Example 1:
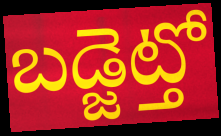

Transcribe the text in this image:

బడ్జెట్తో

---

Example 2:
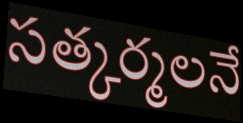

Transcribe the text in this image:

సత్కర్మలనే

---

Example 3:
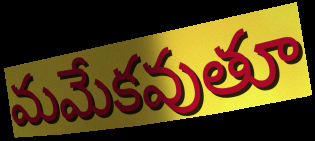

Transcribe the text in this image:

మమేకవుతూ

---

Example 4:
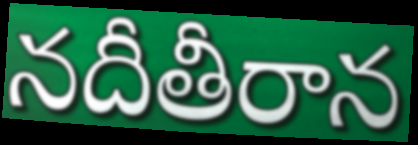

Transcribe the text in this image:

నదీతీరాన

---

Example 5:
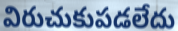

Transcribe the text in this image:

విరుచుకుపడలేదు